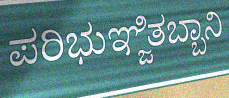
ಪರಿಭುಞ್ಜಿತಬ್ಬಾನಿ